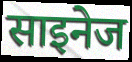
साइनेज